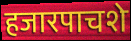
हजारपाचशे